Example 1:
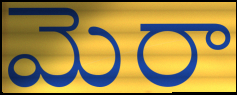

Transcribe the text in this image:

మెరా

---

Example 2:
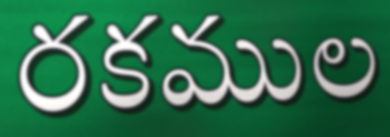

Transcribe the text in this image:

రకముల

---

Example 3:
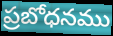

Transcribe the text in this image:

ప్రబోధనము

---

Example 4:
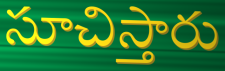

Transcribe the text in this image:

సూచిస్తారు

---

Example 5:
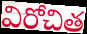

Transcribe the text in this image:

విరోచిత